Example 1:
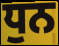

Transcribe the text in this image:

ਧੁਨ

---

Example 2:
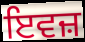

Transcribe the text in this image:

ਇਵਜ਼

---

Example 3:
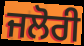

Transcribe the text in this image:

ਜਲੋਰੀ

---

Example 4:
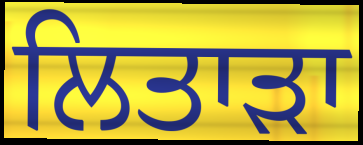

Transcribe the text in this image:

ਲਿਤਾੜਾ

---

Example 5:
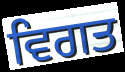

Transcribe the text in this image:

ਵਿਗਤ